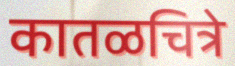
कातळचित्रे